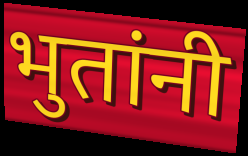
भुतांनी